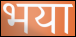
भया